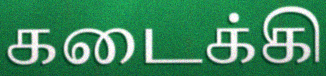
கடைக்கி